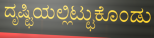
ದೃಷ್ಟಿಯಲ್ಲಿಟ್ಟುಕೊಂಡು